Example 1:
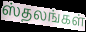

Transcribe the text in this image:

ஸ்தலங்கள்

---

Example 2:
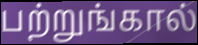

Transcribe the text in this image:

பற்றுங்கால்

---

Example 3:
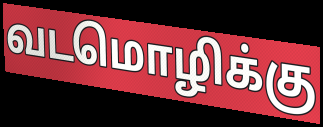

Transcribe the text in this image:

வடமொழிக்கு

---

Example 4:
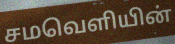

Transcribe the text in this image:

சமவெளியின்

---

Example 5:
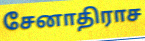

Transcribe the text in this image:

சேனாதிராச